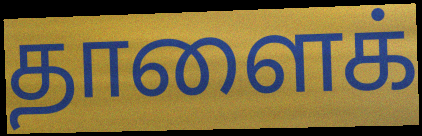
தாளைக்